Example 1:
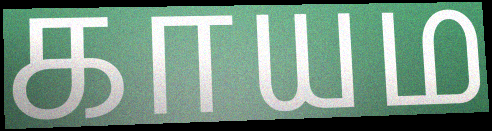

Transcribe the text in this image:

காயம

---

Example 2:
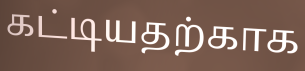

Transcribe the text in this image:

கட்டியதற்காக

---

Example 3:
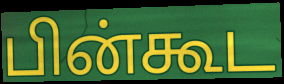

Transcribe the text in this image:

பின்கூட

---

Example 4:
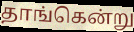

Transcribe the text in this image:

தாங்கென்று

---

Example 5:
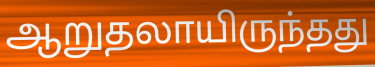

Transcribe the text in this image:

ஆறுதலாயிருந்தது